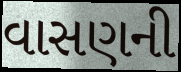
વાસણની